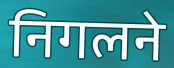
निगलने